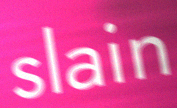
slain